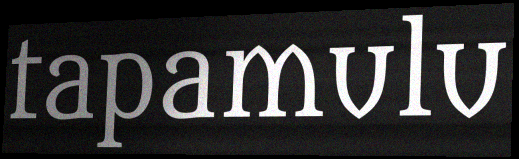
tapamulu